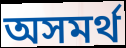
অসমৰ্থ